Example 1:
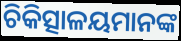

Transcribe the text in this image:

ଚିକିତ୍ସାଳୟମାନଙ୍କ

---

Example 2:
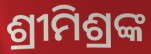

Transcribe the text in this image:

ଶ୍ରୀମିଶ୍ରଙ୍କ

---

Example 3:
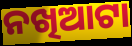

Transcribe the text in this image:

ନଖିଆଟା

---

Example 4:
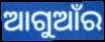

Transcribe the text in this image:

ଆଗୁଆଁର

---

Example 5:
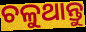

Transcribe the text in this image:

ଚଳୁଥାନ୍ତୁ